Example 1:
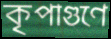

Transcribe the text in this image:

কৃপাগুণে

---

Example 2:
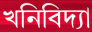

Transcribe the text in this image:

খনিবিদ্যা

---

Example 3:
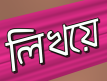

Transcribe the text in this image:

লিখয়ে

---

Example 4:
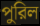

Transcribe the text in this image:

পুরিল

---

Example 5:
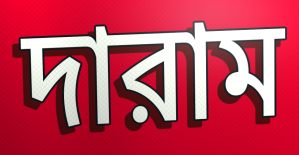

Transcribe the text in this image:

দারাম